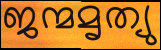
ജന്മമൃത്യു